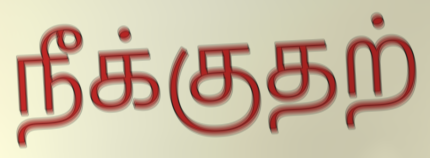
நீக்குதற்